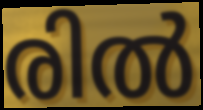
രിൽ